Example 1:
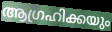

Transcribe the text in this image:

ആഗ്രഹിക്കയും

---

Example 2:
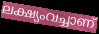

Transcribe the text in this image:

ലക്ഷ്യംവച്ചാണ്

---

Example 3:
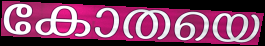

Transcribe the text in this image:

കോതയെ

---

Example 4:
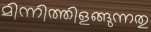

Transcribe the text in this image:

മിന്നിത്തിളങ്ങുന്നതു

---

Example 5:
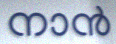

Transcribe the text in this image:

നാൻ